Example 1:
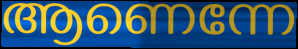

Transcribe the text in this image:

ആണെന്നേ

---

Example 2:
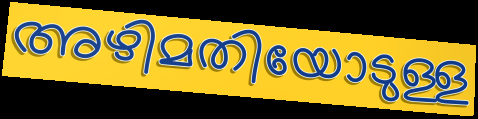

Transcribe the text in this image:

അഴിമതിയോടുള്ള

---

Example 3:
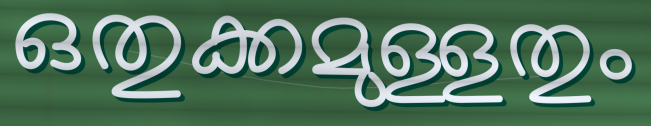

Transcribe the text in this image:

ഒതുക്കമുള്ളതും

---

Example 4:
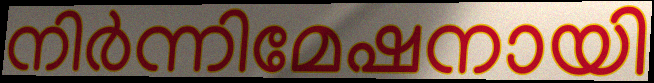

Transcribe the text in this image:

നിർന്നിമേഷനായി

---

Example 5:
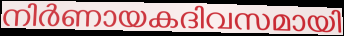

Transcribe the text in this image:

നിർണായകദിവസമായി